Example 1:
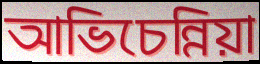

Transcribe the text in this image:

আভিচেন্নিয়া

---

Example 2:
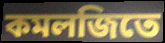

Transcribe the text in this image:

কমলজিতে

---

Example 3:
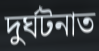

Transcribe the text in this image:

দুৰ্ঘটনাত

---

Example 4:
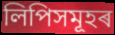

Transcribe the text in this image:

লিপিসমূহৰ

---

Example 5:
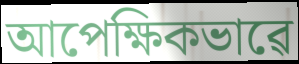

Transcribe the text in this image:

আপেক্ষিকভাৱে